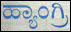
ಹ್ಯಾಂಗ್ರಿ